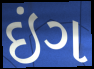
ઇંગ